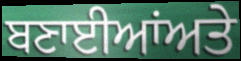
ਬਣਾਈਆਂਅਤੇ